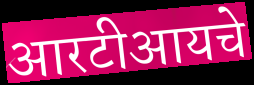
आरटीआयचे